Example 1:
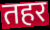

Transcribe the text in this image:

तहर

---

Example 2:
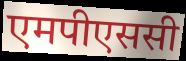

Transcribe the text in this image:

एमपीएससी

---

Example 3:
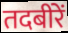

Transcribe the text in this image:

तदबीरें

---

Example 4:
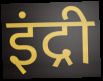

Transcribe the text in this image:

इंद्री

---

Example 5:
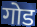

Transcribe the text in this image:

गोड